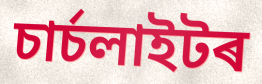
চাৰ্চলাইটৰ